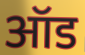
ऑड